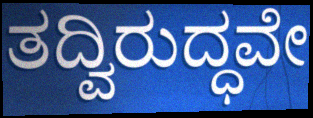
ತದ್ವಿರುದ್ಧವೇ